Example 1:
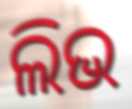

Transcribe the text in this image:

ଲିଭ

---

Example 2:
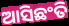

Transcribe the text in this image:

ଆସିଛଂତି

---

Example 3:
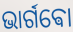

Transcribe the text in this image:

ଭାର୍ଗଵୋ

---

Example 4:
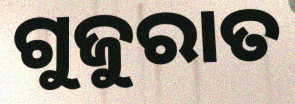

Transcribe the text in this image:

ଗୁଜୁରାତ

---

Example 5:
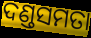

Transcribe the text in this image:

ଦଣ୍ଡସମତା